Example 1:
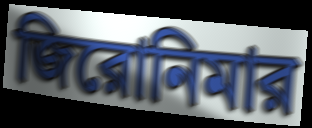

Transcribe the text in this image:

জিরোনিমার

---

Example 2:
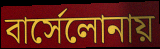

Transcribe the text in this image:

বার্সেলোনায়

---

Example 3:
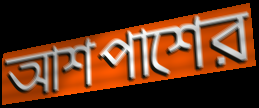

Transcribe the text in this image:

আশপাশের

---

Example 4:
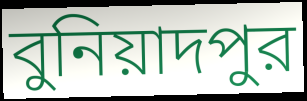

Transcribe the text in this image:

বুনিয়াদপুর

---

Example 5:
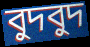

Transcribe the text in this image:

বুদবুদ